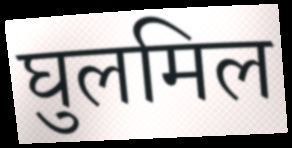
घुलमिल